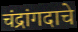
चंद्रांगदाचे